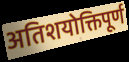
अतिशयोक्तिपूर्ण